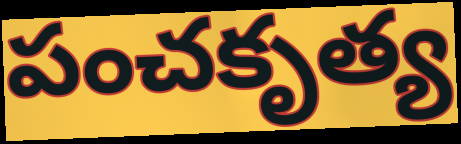
పంచకృత్య